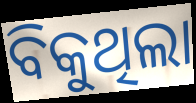
ବିକୁଥିଲା